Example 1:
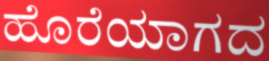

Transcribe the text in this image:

ಹೊರೆಯಾಗದ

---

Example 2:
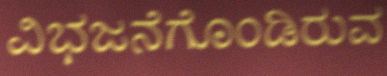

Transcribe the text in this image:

ವಿಭಜನೆಗೊಂಡಿರುವ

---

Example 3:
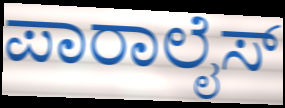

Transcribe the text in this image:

ಪಾರಾಲೈಸ್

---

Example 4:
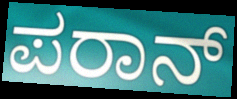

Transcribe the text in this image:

ಪರಾನ್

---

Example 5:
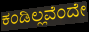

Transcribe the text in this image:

ಕಂಡಿಲ್ಲವೆಂದೇ